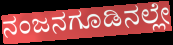
ನಂಜನಗೂಡಿನಲ್ಲೇ